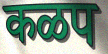
कळप